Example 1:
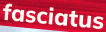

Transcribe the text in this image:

fasciatus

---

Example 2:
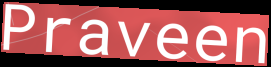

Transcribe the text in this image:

Praveen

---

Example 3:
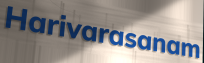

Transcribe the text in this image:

Harivarasanam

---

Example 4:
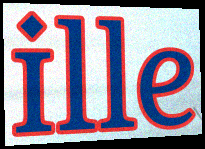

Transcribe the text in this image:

ille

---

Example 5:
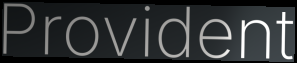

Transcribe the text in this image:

Provident